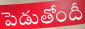
పెడుతోందీ